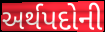
અર્થપદોની